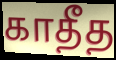
காதீத